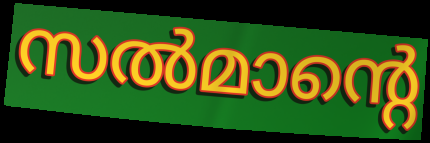
സൽമാന്റെ